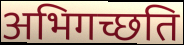
अभिगच्छति